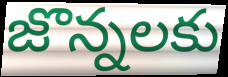
జొన్నలకు